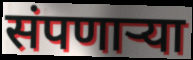
संपणार्‍या